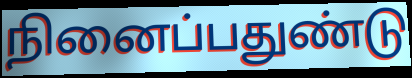
நினைப்பதுண்டு